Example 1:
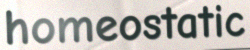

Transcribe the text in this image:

homeostatic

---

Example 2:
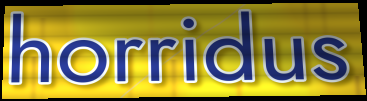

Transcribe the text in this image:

horridus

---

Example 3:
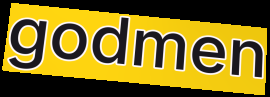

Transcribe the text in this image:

godmen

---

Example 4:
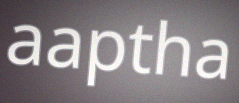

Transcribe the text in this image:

aaptha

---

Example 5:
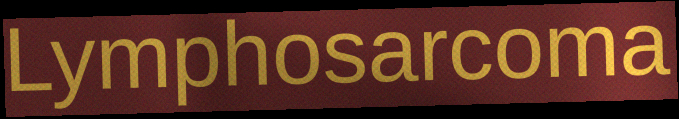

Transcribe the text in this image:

Lymphosarcoma